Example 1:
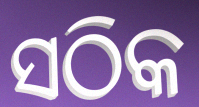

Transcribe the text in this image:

ସଠିକ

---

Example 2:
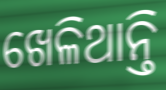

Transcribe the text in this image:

ଖେଳିଥାନ୍ତି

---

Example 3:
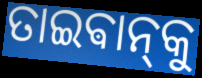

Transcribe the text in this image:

ତାଇଵାନ୍‌କୁ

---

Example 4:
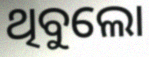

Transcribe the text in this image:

ଥିବୁଲୋ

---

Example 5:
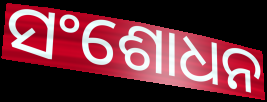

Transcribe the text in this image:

ସଂଶୋଧନ